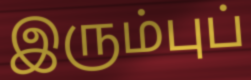
இரும்புப்